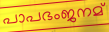
പാപഭംജനമ്